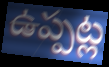
ఉప్పట్ల